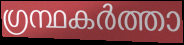
ഗ്രന്ഥകർത്താ